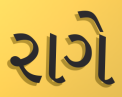
રાગે